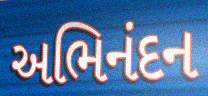
અભિનંદન